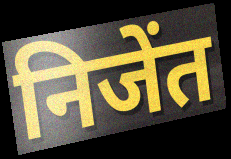
निजेंत